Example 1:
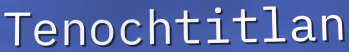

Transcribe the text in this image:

Tenochtitlan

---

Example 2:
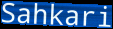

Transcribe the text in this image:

Sahkari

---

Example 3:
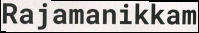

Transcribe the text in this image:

Rajamanikkam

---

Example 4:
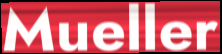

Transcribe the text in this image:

Mueller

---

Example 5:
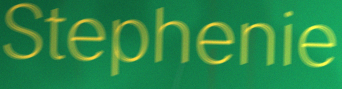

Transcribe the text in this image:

Stephenie